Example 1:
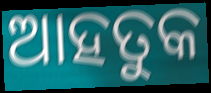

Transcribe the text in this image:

ଆହତୁକ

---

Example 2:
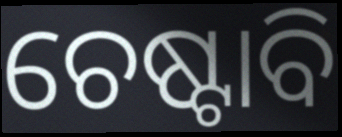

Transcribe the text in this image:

ଚେଷ୍ଟାବି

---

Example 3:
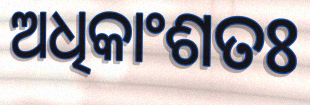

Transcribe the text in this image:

ଅଧିକାଂଶତଃ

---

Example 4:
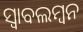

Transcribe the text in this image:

ସ୍ୱାବଲମ୍ବନ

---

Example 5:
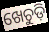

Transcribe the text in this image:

ଖେଚୁଡ଼ି